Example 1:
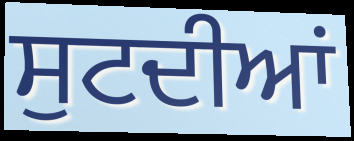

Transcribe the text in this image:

ਸੁਟਦੀਆਂ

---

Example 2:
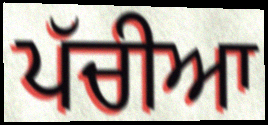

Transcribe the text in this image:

ਪੱਚੀਆ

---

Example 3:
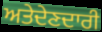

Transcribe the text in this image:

ਅਤੇਦੇਣਦਾਰੀ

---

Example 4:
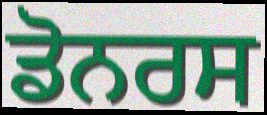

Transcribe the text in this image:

ਡੋਨਰਸ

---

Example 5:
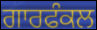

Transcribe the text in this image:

ਗਾਰਫੰਕਲ